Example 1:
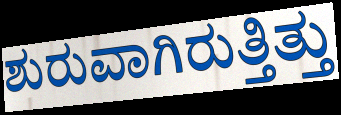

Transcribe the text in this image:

ಶುರುವಾಗಿರುತ್ತಿತ್ತು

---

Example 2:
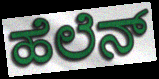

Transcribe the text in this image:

ಹೆಲೆನ್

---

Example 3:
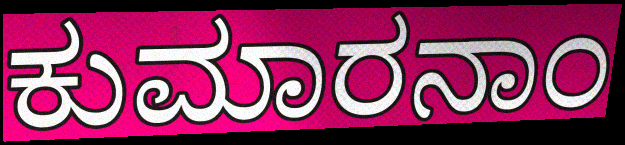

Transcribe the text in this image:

ಕುಮಾರನಾಂ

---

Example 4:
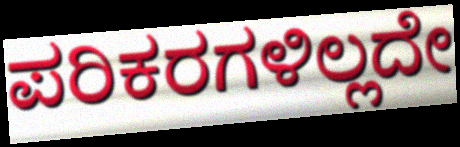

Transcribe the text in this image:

ಪರಿಕರಗಳಿಲ್ಲದೇ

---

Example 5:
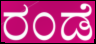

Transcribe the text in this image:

ರಂಡೆ